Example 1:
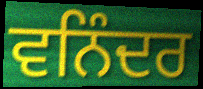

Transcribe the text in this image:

ਵਨਿੰਦਰ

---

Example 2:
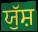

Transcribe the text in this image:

ਯੁੱਸ਼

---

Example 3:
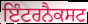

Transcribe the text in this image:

ਇੰਟਰਨੈਕਸਟ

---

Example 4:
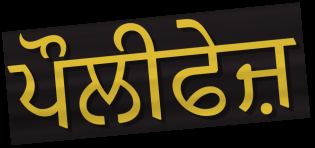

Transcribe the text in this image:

ਪੌਲੀਫੇਜ਼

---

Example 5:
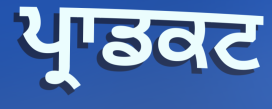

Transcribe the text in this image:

ਪ੍ਰਾਡਕਟ